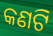
କଣଟି